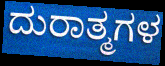
ದುರಾತ್ಮಗಳ